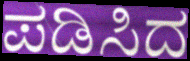
ಪಡಿಸಿದ